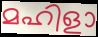
മഹിളാ